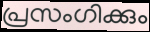
പ്രസംഗിക്കും